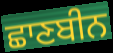
ਛਾਣਬੀਨ